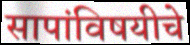
सापांविषयीचे